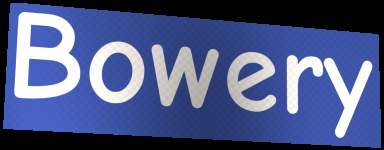
Bowery